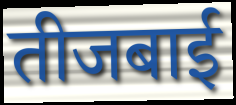
तीजबाई